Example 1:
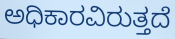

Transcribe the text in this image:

ಅಧಿಕಾರವಿರುತ್ತದೆ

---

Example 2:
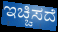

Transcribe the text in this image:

ಇಚ್ಚಿಸದೆ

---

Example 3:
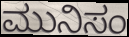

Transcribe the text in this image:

ಮುನಿಸಂ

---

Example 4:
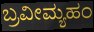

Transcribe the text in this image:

ಬ್ರವೀಮ್ಯಹಂ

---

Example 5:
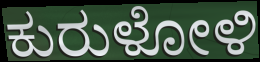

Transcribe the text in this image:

ಕುರುಳೋಳಿ